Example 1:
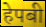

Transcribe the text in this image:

हेपबी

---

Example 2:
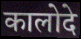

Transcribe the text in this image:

कालोदे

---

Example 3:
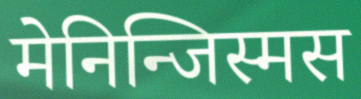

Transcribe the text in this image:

मेनिन्जिस्मस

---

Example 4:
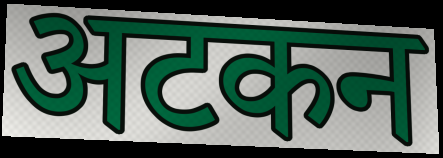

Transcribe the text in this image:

अटकन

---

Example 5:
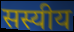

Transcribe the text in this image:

सस्यीय